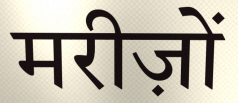
मरीज़ों